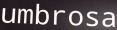
umbrosa